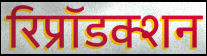
रिप्रॉडक्शन